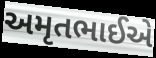
અમૃતભાઈએ